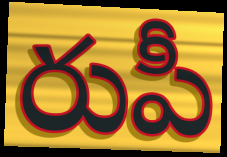
రుపీ